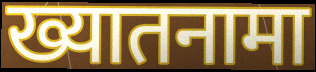
ख्यातनामा